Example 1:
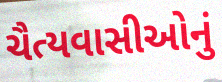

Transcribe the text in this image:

ચૈત્યવાસીઓનું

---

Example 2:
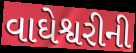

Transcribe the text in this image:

વાઘેશ્વરીની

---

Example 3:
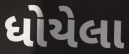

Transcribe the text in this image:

ધોયેલા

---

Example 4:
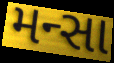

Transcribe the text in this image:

મન્સા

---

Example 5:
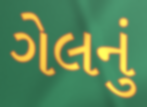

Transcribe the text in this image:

ગેલનું